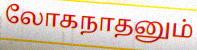
லோகநாதனும்